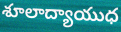
శూలాద్యాయుధ